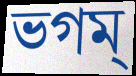
ভগম্